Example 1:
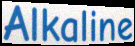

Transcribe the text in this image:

Alkaline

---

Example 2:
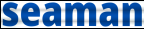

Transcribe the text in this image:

seaman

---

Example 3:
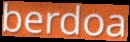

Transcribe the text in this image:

berdoa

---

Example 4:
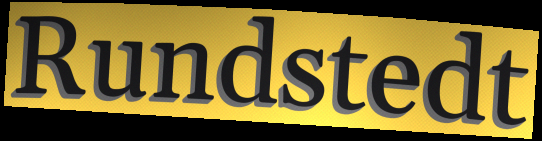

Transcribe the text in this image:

Rundstedt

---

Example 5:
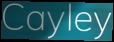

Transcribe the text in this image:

Cayley